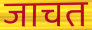
जाचत